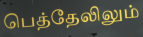
பெத்தேலிலும்